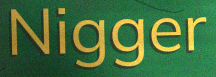
Nigger